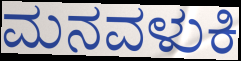
ಮನವಳುಕಿ